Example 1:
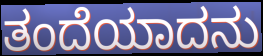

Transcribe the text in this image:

ತಂದೆಯಾದನು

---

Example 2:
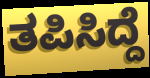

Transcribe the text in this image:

ತಪಿಸಿದ್ದೆ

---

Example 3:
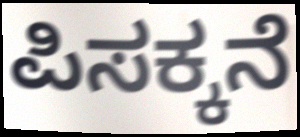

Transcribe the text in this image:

ಪಿಸಕ್ಕನೆ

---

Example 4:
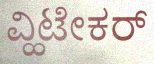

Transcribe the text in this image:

ವ್ಹಿಟೇಕರ್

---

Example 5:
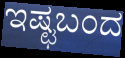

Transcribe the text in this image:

ಇಷ್ಟಬಂದ